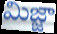
మిజ్జా